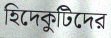
হিদেকুটিদের